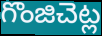
గొంజిచెట్ల